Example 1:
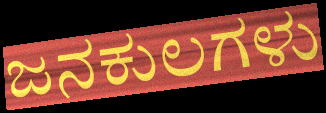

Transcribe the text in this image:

ಜನಕುಲಗಳು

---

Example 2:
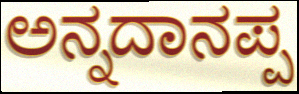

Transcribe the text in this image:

ಅನ್ನದಾನಪ್ಪ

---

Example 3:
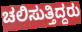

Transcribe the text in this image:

ಚಲಿಸುತ್ತಿದ್ದರು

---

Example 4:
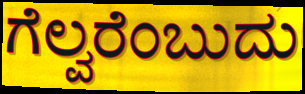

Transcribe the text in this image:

ಗೆಲ್ವರೆಂಬುದು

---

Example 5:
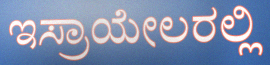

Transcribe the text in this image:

ಇಸ್ರಾಯೇಲರಲ್ಲಿ